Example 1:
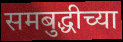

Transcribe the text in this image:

समबुद्धीच्या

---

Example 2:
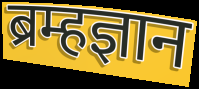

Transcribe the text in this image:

ब्रम्हज्ञान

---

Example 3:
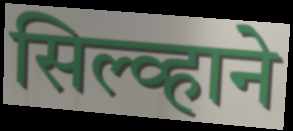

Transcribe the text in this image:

सिल्व्हाने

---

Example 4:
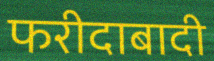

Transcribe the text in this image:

फरीदाबादी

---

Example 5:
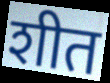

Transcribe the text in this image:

शीत